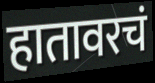
हातावरचं